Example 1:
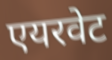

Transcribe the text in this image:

एयरवेट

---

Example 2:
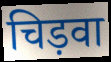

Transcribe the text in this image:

चिड़वा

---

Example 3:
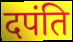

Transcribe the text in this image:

दपंति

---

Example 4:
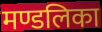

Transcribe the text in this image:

मण्डलिका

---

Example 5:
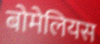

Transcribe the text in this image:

बोमेलियस